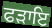
ਫੜਾਇ